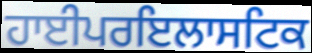
ਹਾਈਪਰਇਲਾਸਟਿਕ